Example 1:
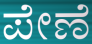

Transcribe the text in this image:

ಪೇಣೆ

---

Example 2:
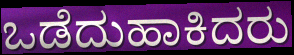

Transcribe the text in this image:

ಒಡೆದುಹಾಕಿದರು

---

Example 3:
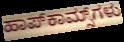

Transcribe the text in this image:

ಹಾಪ್‌ಕಾಮ್ಸ್‌ಗಳು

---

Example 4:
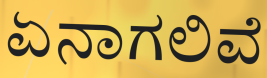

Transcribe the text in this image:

ಏನಾಗಲಿವೆ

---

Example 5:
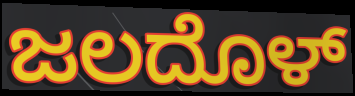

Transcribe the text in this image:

ಜಲದೊಳ್